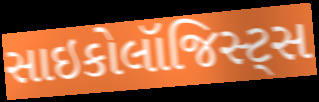
સાઇકોલૉજિસ્ટ્સ